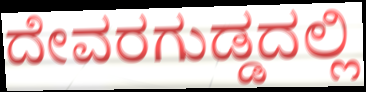
ದೇವರಗುಡ್ಡದಲ್ಲಿ